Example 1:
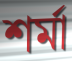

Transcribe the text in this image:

শর্মা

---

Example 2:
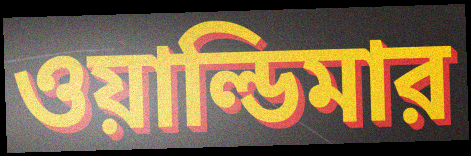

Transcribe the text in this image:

ওয়াল্ডিমার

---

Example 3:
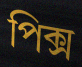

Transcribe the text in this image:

পিক্স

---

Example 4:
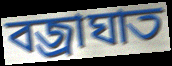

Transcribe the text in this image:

বজ্রাঘাত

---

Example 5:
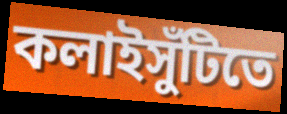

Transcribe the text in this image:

কলাইসুঁটিতে